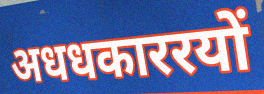
अधधकाररयों